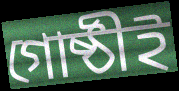
গোষ্ঠীই